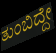
ತುಂಬಿದ್ದೇ